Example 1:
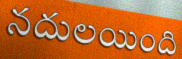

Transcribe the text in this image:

నదులయింది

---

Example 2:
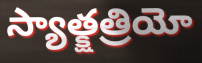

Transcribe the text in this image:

స్యాత్క్షత్రియో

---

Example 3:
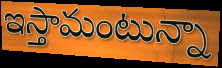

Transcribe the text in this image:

ఇస్తామంటున్నా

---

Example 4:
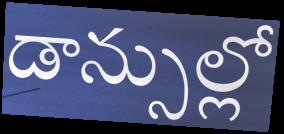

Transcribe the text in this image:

డాన్సుల్లో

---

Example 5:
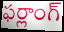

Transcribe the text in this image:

ఫర్లాంగ్